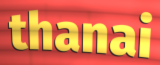
thanai